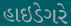
હાઇડેગરે